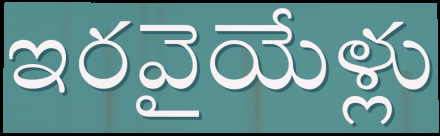
ఇరవైయేళ్లు